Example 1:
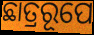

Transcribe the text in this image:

ଛାତ୍ରରୂପେ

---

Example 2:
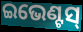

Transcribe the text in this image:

ଇଭେଣ୍ଟସ୍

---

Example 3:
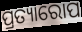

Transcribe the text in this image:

ପ୍ରତ୍ୟାରୋପ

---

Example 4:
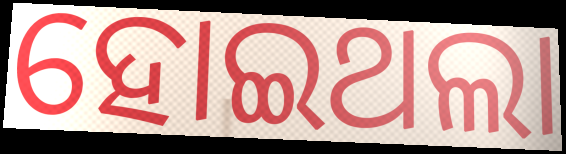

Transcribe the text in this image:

ହୋଇଥଲା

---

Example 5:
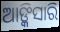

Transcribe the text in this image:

ଆଙ୍କିସାରି